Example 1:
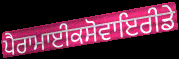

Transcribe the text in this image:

ਪੈਰਾਮਾਈਕਸੋਵਾਇਰੀਡੇ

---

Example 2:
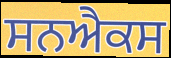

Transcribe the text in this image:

ਸਨਐਕਸ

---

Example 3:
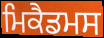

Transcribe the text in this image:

ਮਿਕੈਡਮਸ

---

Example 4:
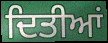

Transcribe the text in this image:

ਦਿਤੀਆਂ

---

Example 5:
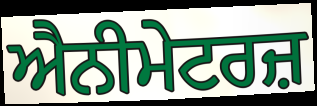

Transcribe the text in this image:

ਐਨੀਮੇਟਰਜ਼